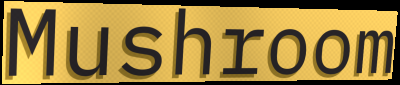
Mushroom